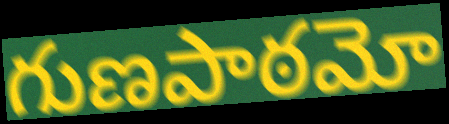
గుణపాఠమో